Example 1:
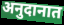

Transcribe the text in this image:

अनुदानात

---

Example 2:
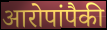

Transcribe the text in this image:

आरोपांपैकी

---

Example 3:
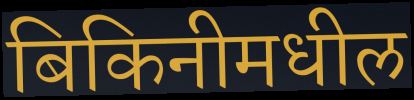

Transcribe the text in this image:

बिकिनीमधील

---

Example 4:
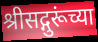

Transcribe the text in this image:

श्रीसद्गुरूंच्या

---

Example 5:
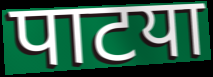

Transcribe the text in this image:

पाटया